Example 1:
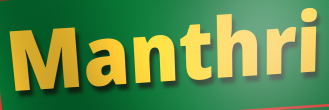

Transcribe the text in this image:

Manthri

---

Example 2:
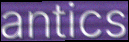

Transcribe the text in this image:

antics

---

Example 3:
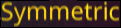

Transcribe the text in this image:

Symmetric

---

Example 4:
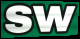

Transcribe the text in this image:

sw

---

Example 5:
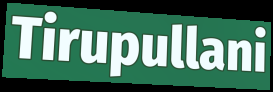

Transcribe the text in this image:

Tirupullani